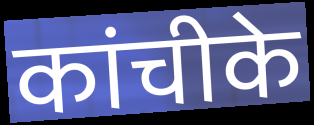
कांचीके